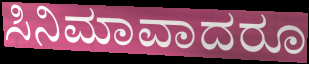
ಸಿನಿಮಾವಾದರೂ